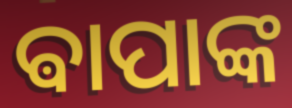
ଵାପାଙ୍କ